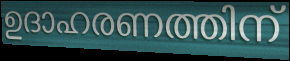
ഉദാഹരണത്തിന്